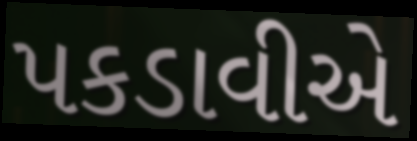
પકડાવીએ